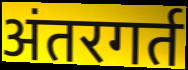
अंतरगर्त